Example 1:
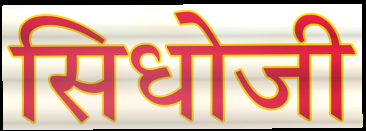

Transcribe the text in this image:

सिधोजी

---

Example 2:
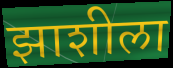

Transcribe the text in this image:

झाशीला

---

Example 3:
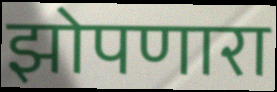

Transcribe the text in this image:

झोपणारा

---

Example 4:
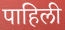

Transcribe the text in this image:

पाहिली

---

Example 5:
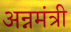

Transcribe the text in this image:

अन्नमंत्री